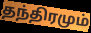
தந்திரமும்